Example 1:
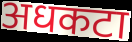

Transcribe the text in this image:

अधकटा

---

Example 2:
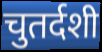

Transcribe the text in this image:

चुतर्दशी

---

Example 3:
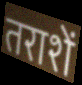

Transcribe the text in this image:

तराशें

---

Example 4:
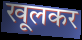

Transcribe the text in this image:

खूलकर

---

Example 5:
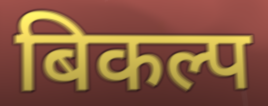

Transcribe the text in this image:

बिकल्प